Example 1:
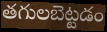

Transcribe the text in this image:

తగులబెట్టడం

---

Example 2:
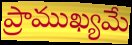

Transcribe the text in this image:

ప్రాముఖ్యమే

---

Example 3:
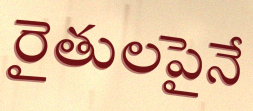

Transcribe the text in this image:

రైతులపైనే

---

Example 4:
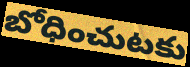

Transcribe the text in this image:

బోధించుటకు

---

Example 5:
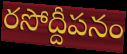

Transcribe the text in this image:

రసోద్దీపనం